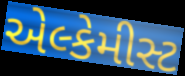
એલ્કેમીસ્ટ